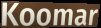
Koomar